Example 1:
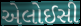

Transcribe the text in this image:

એલોઈસી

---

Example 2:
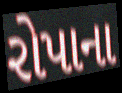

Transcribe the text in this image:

રોપાના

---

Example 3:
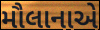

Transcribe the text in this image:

મૌલાનાએ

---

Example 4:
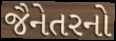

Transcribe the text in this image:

જૈનેતરનો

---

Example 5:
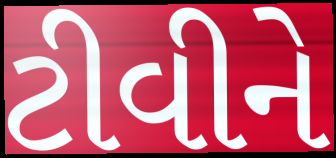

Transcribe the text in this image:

ટીવીને